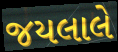
જયલાલે